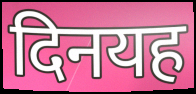
दिनयह